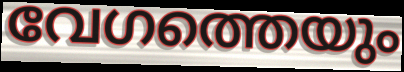
വേഗത്തെയും